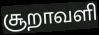
சூறாவளி